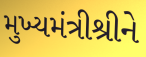
મુખ્યમંત્રીશ્રીને